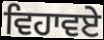
ਵਿਹਾਵਏ